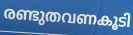
രണ്ടുതവണകൂടി